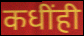
कधींही